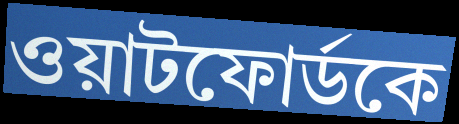
ওয়াটফোর্ডকে